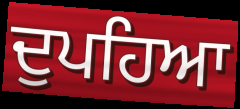
ਦੁਪਹਿਆ